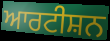
ਆਰਟੀਸ਼ਨ